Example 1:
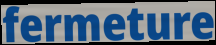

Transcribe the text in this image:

fermeture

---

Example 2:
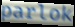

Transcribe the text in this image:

parlok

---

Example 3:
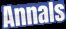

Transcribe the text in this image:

Annals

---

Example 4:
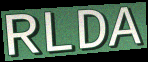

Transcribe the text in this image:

RLDA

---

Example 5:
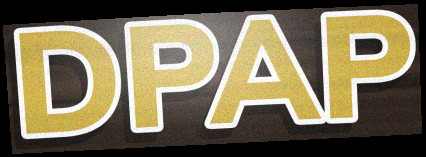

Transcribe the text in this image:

DPAP